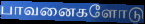
பாவனைகளோடு